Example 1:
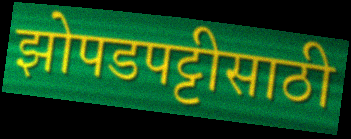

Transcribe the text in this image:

झोपडपट्टीसाठी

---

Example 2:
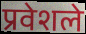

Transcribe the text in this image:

प्रवेशले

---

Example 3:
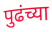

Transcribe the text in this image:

पुढंच्या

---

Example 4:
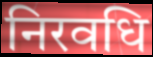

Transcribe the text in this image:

निरवधि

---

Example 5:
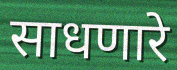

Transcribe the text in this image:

साधणारे